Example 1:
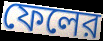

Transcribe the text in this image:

ফেলের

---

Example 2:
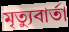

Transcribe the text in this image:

মৃত্যুবার্তা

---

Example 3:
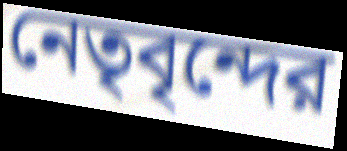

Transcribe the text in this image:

নেতৃবৃন্দের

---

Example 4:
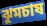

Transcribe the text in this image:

ঝুমচাষ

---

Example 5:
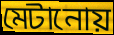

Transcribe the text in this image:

মেটানোয়